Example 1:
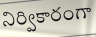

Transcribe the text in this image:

నిర్వికారంగా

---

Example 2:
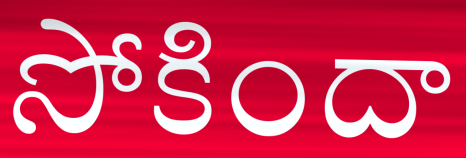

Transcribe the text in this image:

సోకిందా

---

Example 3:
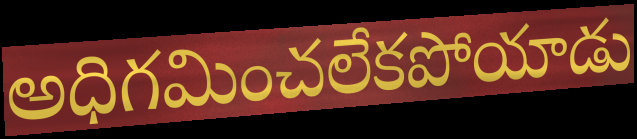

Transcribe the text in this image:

అధిగమించలేకపోయాడు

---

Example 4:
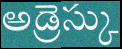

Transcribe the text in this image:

అడ్రెస్కు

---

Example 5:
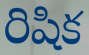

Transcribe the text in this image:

రిషిక